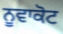
ਨੂਵਾਕੋਟ